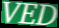
VED